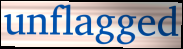
unflagged